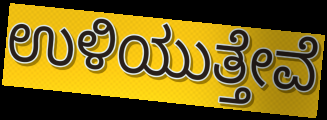
ಉಳಿಯುತ್ತೇವೆ